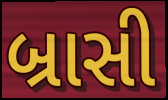
બ્રાસી